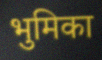
भुमिका